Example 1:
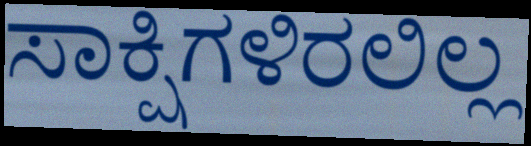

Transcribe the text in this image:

ಸಾಕ್ಷಿಗಳಿರಲಿಲ್ಲ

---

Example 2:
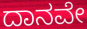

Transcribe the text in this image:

ದಾನವೇ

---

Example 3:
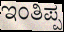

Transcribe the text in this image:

ಇಂತಿಪ್ಪ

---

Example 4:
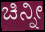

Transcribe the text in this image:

ಚಿನ್ನೀ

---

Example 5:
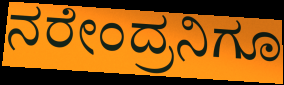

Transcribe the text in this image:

ನರೇಂದ್ರನಿಗೂ